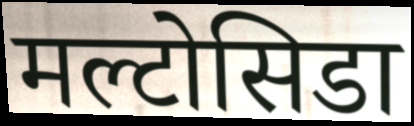
मल्टोसिडा